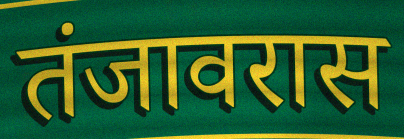
तंजावरास